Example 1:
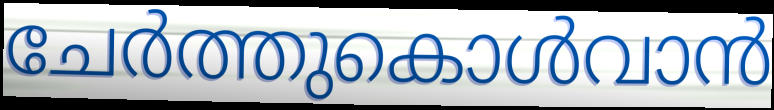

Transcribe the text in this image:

ചേർത്തുകൊൾവാൻ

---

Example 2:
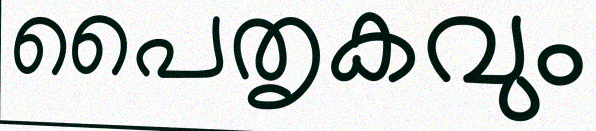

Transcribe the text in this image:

പൈതൃകവും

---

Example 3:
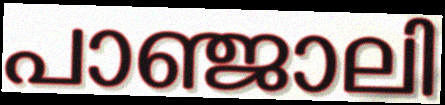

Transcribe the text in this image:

പാഞ്ജാലി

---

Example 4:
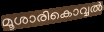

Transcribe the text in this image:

മൂശാരികൊവ്വൽ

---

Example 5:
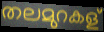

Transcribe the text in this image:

തലമുറകള്